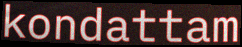
kondattam